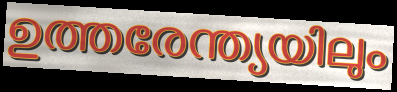
ഉത്തരേന്ത്യയിലും